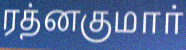
ரத்னகுமார்